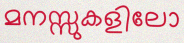
മനസ്സുകളിലോ